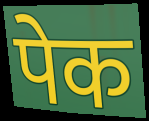
पेक